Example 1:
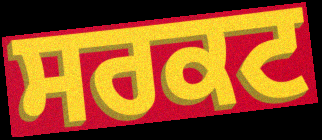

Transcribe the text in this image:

ਸਰਕਟ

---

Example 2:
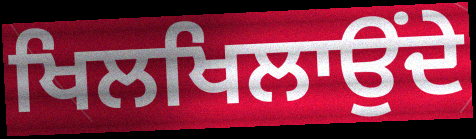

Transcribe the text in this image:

ਖਿਲਖਿਲਾਉਂਦੇ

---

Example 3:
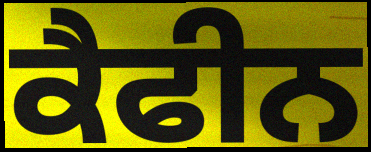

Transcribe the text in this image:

ਕੈਫੀਨ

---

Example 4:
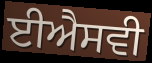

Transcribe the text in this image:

ਈਐਸਵੀ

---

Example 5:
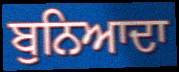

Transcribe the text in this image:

ਬੁਨਿਆਦਾ